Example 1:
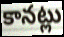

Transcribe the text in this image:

కానట్లు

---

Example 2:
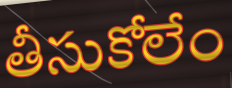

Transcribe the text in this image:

తీసుకోలేం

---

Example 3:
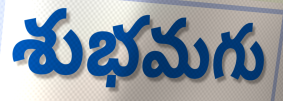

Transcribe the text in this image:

శుభమగు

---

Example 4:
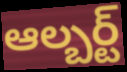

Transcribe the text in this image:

ఆల్బర్ట్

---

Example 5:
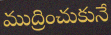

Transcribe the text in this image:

ముద్రించుకునే